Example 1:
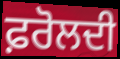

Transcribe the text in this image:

ਫ਼ਰੋਲਦੀ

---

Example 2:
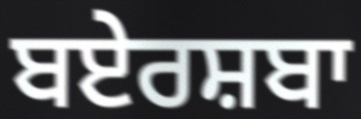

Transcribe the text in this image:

ਬਏਰਸ਼ਬਾ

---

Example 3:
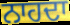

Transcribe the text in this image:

ਨਾਹਦਾ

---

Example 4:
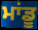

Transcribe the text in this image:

ਮਾਂਡੂ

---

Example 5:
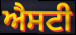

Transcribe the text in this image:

ਐਸਟੀ